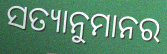
ସତ୍ୟାନୁମାନର